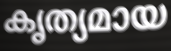
കൃത്യമായ